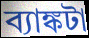
ব্যাঙ্কটা